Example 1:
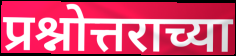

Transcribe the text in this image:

प्रश्नोत्तराच्या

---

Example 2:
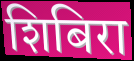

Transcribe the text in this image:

शिबिरा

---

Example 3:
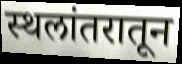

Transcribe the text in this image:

स्थलांतरातून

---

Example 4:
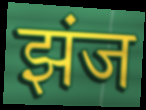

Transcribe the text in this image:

झंज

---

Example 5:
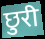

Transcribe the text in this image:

छुरी